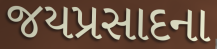
જયપ્રસાદના